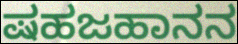
ಷಹಜಹಾನನ